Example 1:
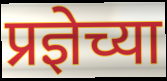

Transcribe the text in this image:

प्रज्ञेच्या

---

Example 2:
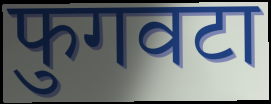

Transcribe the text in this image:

फुगवटा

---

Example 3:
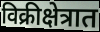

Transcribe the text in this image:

विक्रीक्षेत्रात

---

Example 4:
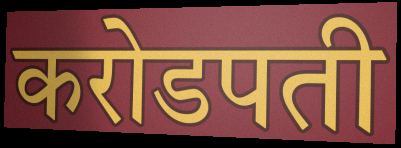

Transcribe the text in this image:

करोडपती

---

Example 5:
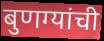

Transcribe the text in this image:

बुणग्यांची